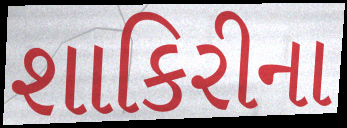
શાકિરીના